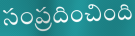
సంప్రదించింది